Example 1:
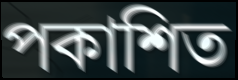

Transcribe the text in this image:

পকাশিত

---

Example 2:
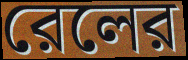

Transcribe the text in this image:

রেলের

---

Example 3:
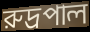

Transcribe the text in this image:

রুদ্রপাল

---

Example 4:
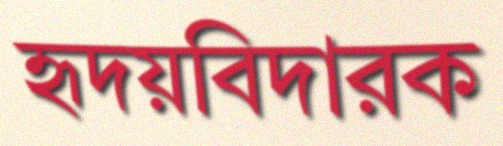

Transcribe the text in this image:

হৃদয়বিদারক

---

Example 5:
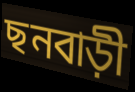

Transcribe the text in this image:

ছনবাড়ী